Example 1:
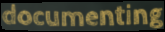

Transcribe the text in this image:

documenting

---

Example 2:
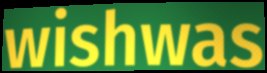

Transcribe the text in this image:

wishwas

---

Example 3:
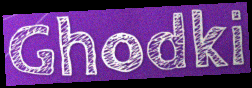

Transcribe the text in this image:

Ghodki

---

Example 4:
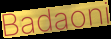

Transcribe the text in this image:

Badaoni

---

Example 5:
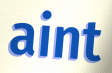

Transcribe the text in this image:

aint